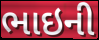
ભાઇની